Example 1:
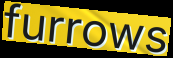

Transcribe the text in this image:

furrows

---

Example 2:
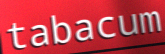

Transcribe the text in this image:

tabacum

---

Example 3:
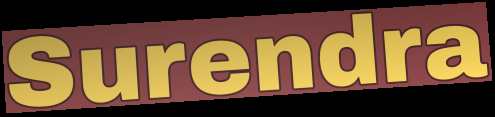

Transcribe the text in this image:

Surendra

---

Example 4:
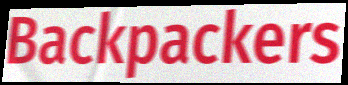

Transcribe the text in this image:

Backpackers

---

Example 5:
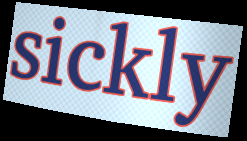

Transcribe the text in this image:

sickly